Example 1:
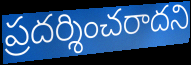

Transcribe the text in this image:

ప్రదర్శించరాదని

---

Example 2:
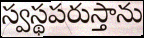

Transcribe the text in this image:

స్వస్థపరుస్తాను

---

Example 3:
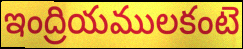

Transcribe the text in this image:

ఇంద్రియములకంటె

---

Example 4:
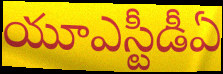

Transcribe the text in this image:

యూఎస్టీడీఏ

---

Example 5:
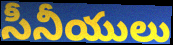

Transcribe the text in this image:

సీనీయులు